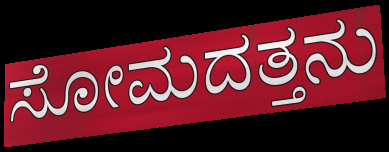
ಸೋಮದತ್ತನು